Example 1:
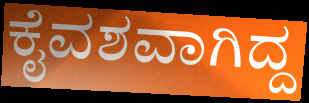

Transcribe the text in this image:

ಕೈವಶವಾಗಿದ್ದ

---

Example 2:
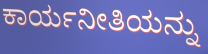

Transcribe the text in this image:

ಕಾರ್ಯನೀತಿಯನ್ನು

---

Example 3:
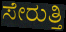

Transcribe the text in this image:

ಸೇರುತ್ತಿ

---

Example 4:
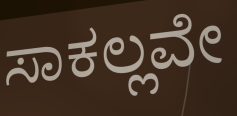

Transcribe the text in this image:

ಸಾಕಲ್ಲವೇ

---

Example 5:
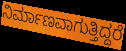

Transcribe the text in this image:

ನಿರ್ಮಾಣವಾಗುತ್ತಿದ್ದರೆ